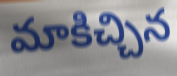
మాకిచ్చిన